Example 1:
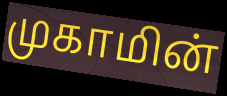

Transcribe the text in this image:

முகாமின்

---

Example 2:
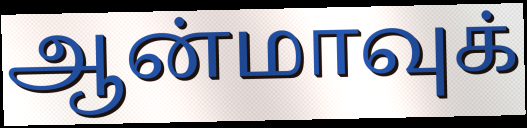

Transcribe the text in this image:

ஆன்மாவுக்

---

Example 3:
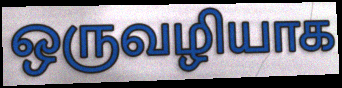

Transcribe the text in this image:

ஒருவழியாக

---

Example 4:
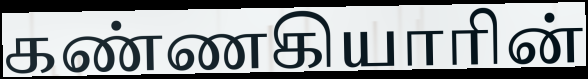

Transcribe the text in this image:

கண்ணகியாரின்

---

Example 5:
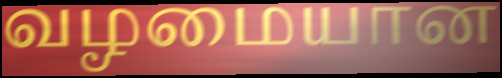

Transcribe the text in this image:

வழமையான